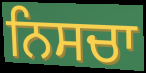
ਨਿਸਚਾ